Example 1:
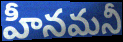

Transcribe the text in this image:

హీనమనీ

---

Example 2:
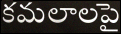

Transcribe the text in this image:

కమలాలపై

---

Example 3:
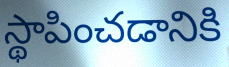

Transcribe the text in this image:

స్థాపించడానికి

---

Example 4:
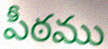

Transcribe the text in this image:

పీఠము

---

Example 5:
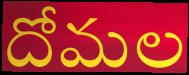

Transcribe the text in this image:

దోమల